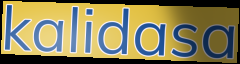
kalidasa